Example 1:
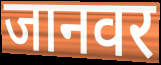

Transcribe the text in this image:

जानवर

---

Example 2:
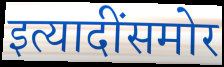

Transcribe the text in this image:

इत्यादींसमोर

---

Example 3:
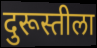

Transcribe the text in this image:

दुरूस्तीला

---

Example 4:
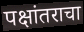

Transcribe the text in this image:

पक्षांतराचा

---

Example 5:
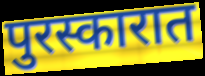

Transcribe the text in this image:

पुरस्कारात